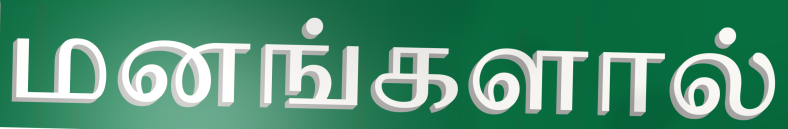
மனங்களால்